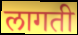
लागती